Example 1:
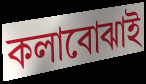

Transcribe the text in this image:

কলাবোঝাই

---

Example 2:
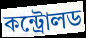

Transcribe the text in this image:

কন্ট্রোলড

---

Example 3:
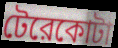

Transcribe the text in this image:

টেরেকোটা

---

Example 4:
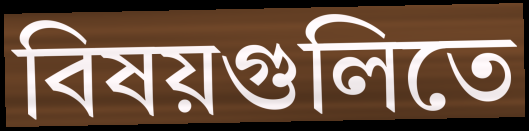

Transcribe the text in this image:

বিষয়গুলিতে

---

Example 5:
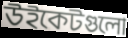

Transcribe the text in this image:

উইকেটগুলো